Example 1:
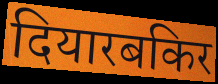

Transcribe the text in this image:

दियारबकिर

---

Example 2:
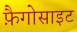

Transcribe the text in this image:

फ़ैगोसाइट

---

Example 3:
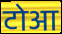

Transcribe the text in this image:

टोआ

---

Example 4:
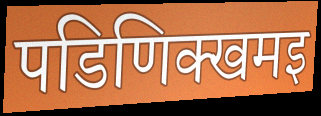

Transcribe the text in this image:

पडिणिक्खमइ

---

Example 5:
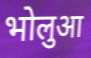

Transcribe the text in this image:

भोलुआ